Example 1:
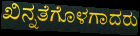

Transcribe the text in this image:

ಖಿನ್ನತೆಗೊಳಗಾದರು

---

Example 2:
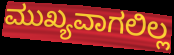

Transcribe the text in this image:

ಮುಖ್ಯವಾಗಲಿಲ್ಲ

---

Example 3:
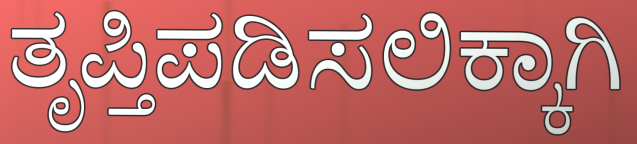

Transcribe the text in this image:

ತೃಪ್ತಿಪಡಿಸಲಿಕ್ಕಾಗಿ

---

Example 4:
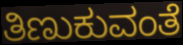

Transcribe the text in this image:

ತಿಣುಕುವಂತೆ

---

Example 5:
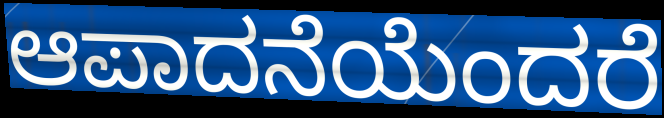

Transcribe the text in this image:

ಆಪಾದನೆಯೆಂದರೆ